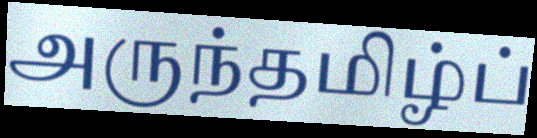
அருந்தமிழ்ப்